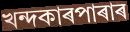
খন্দকাৰপাৰাৰ